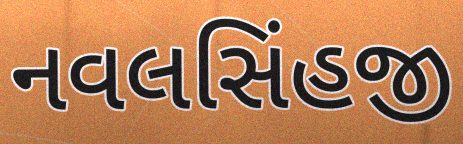
નવલસિંહજી